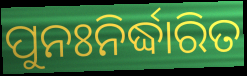
ପୁନଃନିର୍ଦ୍ଧାରିତ